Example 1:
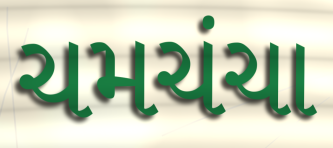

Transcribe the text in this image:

ચમચંચા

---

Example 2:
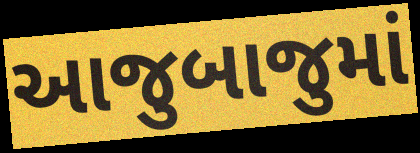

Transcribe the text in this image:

આજુબાજુમાં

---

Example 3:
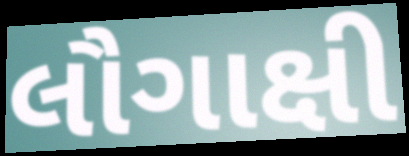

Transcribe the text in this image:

લૌગાક્ષી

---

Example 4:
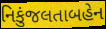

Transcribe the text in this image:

નિકુંજલતાબહેન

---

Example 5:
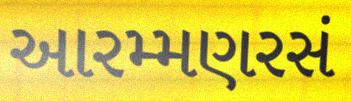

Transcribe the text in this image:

આરમ્મણરસં